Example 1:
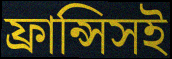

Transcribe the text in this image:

ফ্রান্সিসই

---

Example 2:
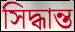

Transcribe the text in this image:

সিদ্ধান্ত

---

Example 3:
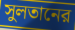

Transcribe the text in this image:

সুলতানের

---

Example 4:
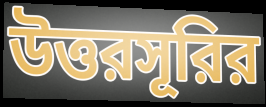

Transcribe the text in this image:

উত্তরসূরির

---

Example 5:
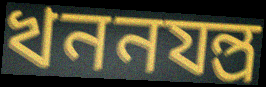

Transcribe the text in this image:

খননযন্ত্র